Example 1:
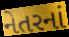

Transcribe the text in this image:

નેતરનાં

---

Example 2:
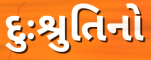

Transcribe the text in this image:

દુઃશ્રુતિનો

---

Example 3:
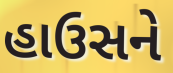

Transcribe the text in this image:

હાઉસને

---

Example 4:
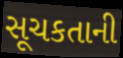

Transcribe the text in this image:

સૂચકતાની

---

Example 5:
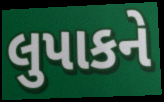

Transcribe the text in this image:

લુપાકને